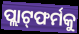
ପ୍ଲାଟ୍‌ଫର୍ମକୁ